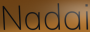
Nadai